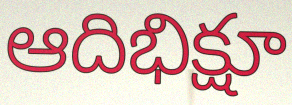
ఆదిభిక్షూ